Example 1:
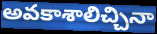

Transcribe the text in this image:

అవకాశాలిచ్చినా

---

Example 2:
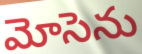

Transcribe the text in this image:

మోసెను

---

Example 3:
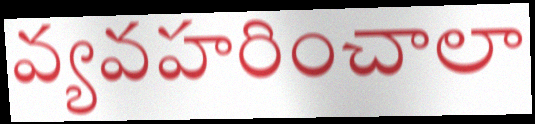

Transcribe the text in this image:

వ్యవహరించాలా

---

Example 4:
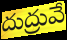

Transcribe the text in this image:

దుద్రువే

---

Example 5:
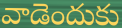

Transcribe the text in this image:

వాడెందుకు